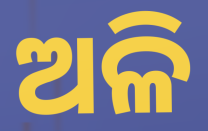
ଅଳି